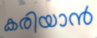
കരിയാൻ